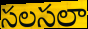
సలసలా